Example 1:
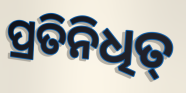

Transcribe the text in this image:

ପ୍ରତିନିଧିତ୍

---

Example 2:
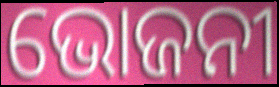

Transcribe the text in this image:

ଭୋଜନୀ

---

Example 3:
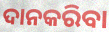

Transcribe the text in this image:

ଦାନକରିବା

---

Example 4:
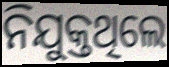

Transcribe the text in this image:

ନିଯୁକ୍ତଥିଲେ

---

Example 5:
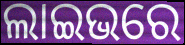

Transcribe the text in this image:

ଲାଇଭରେ